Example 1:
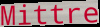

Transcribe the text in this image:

Mittre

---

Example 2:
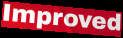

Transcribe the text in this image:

Improved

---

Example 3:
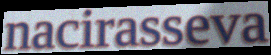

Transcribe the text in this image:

nacirasseva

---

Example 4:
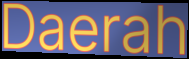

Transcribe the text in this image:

Daerah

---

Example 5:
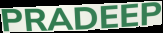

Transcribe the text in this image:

PRADEEP